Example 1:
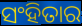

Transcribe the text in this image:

ସଂହିତାର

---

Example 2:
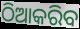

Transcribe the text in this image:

ଠିଆକରିବ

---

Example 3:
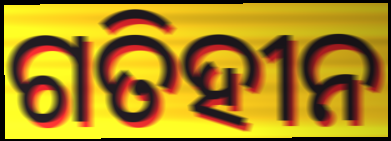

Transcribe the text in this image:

ଗତିହୀନ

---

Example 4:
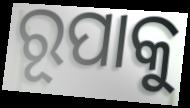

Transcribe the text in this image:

ରୂପାକୁ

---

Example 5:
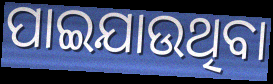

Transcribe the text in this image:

ପାଇଯାଉଥିବା